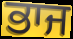
ਭਾਜ